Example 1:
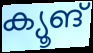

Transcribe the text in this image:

ക്യൂങ്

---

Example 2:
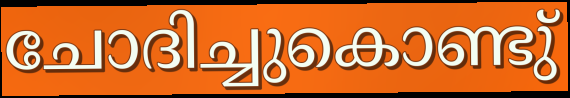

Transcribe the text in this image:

ചോദിച്ചുകൊണ്ടു്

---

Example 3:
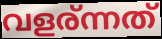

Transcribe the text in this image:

വളര്ന്നത്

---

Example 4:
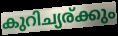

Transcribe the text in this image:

കുറിച്യര്ക്കും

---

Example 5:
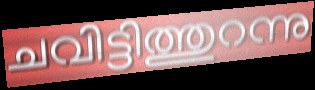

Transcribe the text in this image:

ചവിട്ടിത്തുറന്നു